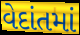
વેદાંતમાં